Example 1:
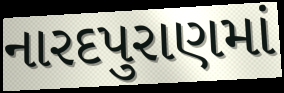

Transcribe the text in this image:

નારદપુરાણમાં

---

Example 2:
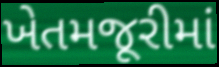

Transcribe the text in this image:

ખેતમજૂરીમાં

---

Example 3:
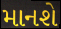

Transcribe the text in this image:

માનશે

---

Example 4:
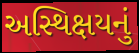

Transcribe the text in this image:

અસ્થિક્ષયનું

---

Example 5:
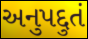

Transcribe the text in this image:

અનુપદ્દુતં